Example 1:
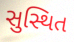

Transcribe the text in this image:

સુસ્થિત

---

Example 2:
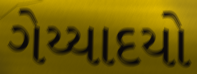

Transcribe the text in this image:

ગેય્યાદયો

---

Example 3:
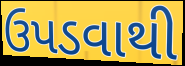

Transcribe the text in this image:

ઉપડવાથી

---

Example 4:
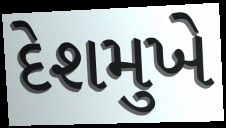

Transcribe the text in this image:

દેશમુખે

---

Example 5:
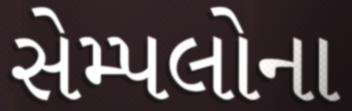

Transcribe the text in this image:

સેમ્પલોના